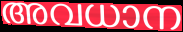
അവധാന